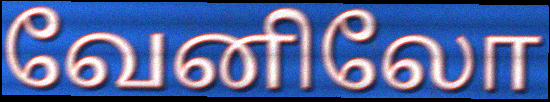
வேனிலோ